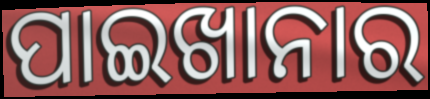
ପାଇଖାନାର